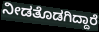
ನೀಡತೊಡಗಿದ್ದಾರೆ